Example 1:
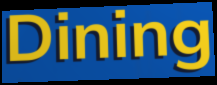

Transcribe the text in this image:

Dining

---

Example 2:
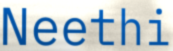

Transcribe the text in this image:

Neethi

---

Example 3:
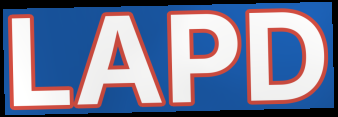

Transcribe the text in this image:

LAPD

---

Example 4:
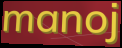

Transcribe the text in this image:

manoj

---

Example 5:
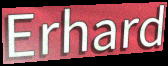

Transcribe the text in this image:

Erhard